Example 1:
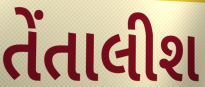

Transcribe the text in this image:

તેંતાલીશ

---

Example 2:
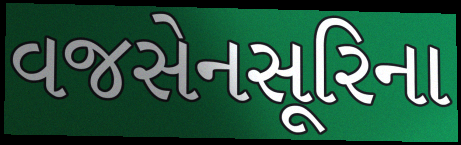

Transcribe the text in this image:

વજસેનસૂરિના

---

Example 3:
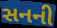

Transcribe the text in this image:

સનની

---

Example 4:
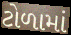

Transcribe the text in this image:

ટોળામાં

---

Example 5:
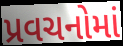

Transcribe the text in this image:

પ્રવચનોમાં